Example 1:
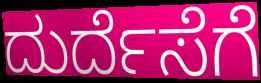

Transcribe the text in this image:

ದುರ್ದೆಸೆಗೆ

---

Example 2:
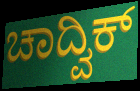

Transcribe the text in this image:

ಚಾದ್ವಿಕ್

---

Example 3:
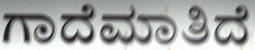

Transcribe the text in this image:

ಗಾದೆಮಾತಿದೆ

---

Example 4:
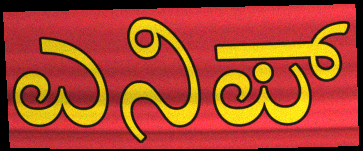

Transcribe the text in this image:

ಎನಿಪ್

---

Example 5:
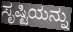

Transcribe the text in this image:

ಸೃಷ್ಟಿಯನ್ನು